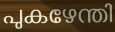
പുകഴേന്തി